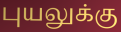
புயலுக்கு